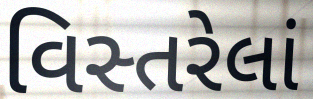
વિસ્તરેલાં